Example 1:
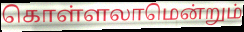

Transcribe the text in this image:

கொள்ளலாமென்றும்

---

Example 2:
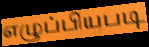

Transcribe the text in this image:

எழுப்பியபடி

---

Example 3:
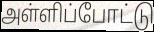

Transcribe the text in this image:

அள்ளிப்போட்டு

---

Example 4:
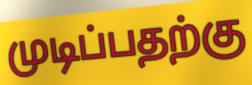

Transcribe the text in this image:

முடிப்பதற்கு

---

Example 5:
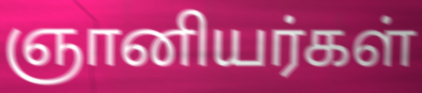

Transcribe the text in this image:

ஞானியர்கள்